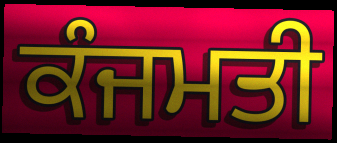
ਕੰਜਮਤੀ